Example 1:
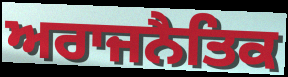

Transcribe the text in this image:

ਅਰਾਜਨੈਤਿਕ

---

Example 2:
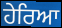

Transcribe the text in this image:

ਹੇਰਿਆ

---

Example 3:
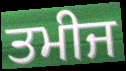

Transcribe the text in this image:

ਤਮੀਜ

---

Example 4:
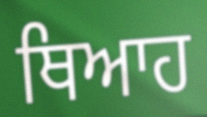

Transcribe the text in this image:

ਥਿਆਹ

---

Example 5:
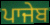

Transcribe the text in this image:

ਪਾਜੇਬ